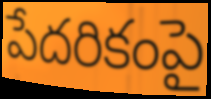
పేదరికంపై